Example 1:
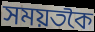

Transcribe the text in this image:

সময়তকৈ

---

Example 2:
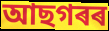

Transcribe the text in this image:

আছগৰৰ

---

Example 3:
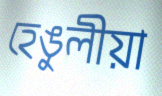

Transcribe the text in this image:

হেঙুলীয়া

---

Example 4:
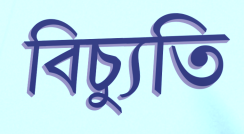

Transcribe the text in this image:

বিচ্যুতি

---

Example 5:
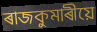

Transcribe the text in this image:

ৰাজকুমাৰীয়ে